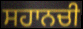
ਸਹਾਨਚੀ